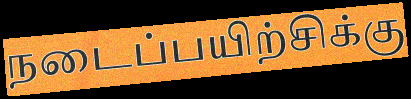
நடைப்பயிற்சிக்கு